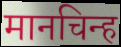
मानचिन्ह